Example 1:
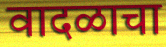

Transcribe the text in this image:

वादळाचा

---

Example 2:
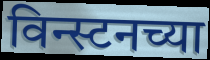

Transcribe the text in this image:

विन्स्टनच्या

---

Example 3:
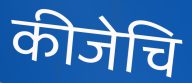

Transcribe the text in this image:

कीजेचि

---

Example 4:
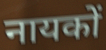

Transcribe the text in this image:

नायकों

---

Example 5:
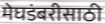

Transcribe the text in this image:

मेघडंबरीसाठी